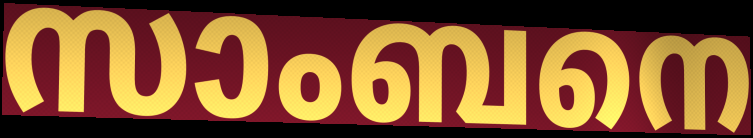
സാംബനെ